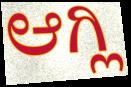
ಆಗ್ಲಿ